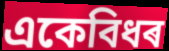
একেবিধৰ